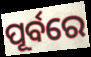
ପୂର୍ବରେ